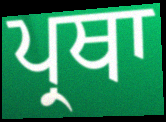
ਪ੍ਰਥਾ